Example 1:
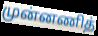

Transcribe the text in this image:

முன்னணித்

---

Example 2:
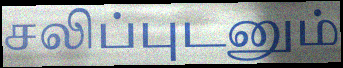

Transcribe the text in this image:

சலிப்புடனும்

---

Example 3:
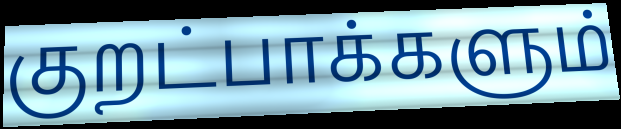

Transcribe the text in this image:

குறட்பாக்களும்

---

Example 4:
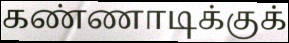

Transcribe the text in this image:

கண்ணாடிக்குக்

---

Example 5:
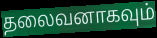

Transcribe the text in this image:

தலைவனாகவும்